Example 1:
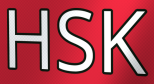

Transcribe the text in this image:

HSK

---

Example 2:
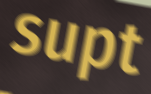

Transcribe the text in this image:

supt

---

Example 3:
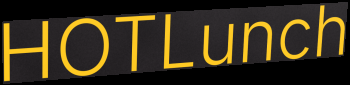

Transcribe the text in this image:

HOTLunch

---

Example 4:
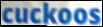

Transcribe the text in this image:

cuckoos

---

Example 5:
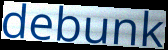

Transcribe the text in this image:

debunk